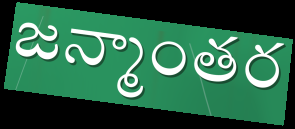
జన్మాంతర